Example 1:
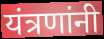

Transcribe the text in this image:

यंत्रणांनी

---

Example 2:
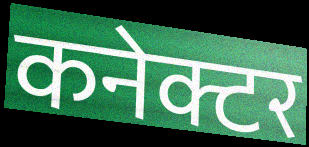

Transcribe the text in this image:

कनेक्टर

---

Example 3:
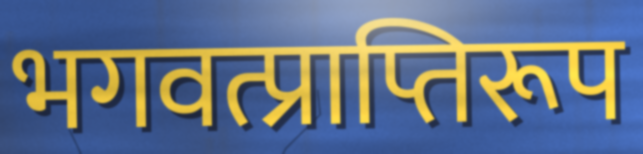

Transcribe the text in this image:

भगवत्प्राप्तिरूप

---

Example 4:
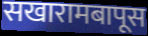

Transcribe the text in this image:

सखारामबापूस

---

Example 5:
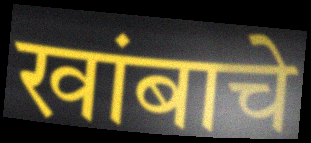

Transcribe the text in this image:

खांबाचे